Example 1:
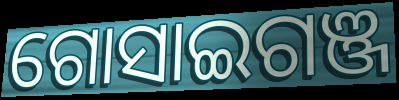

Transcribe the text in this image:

ଗୋସାଇଗଞ୍ଜ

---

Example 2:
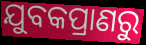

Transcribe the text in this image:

ଯୁବକପ୍ରାଣରୁ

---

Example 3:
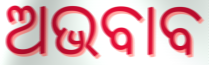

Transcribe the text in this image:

ଅଭବାବ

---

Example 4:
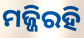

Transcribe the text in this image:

ମଜ୍ଜିରହି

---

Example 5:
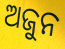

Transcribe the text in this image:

ଅଜୁନ